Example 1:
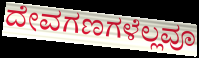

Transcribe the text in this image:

ದೇವಗಣಗಳೆಲ್ಲವೂ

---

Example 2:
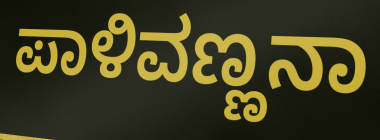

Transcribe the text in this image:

ಪಾಳಿವಣ್ಣನಾ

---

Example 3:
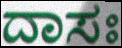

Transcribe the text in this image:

ದಾಸಃ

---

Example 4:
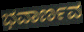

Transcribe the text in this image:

ಭವಾರ್ಣವ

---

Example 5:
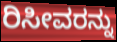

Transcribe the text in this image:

ರಿಸೀವರನ್ನು